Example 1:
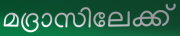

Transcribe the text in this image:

മദ്രാസിലേക്ക്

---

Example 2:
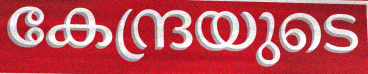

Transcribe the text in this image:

കേന്ദ്രയുടെ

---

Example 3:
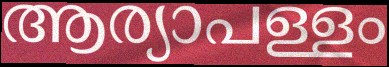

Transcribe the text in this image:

ആര്യാപള്ളം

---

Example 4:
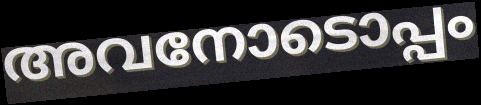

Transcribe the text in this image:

അവനോടൊപ്പം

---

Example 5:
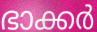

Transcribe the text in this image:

ഭാക്കർ